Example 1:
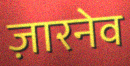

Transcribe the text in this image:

ज़ारनेव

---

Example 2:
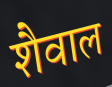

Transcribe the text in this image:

शैवाल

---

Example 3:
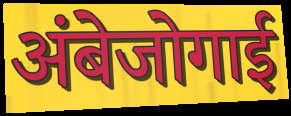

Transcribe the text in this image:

अंबेजोगाई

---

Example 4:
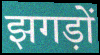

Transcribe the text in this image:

झगड़ों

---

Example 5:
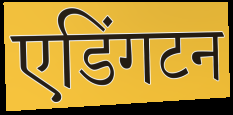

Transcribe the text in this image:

एडिंगटन